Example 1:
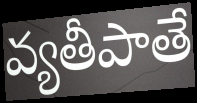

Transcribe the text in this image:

వ్యతీపాతే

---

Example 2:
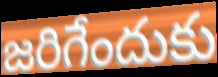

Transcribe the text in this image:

జరిగేందుకు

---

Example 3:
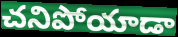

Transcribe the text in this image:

చనిపోయాడా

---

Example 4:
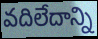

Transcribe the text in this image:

వదిలేదాన్ని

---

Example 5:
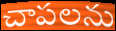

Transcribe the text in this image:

చాపలను